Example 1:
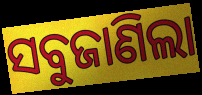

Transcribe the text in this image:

ସବୁଜାଣିଲା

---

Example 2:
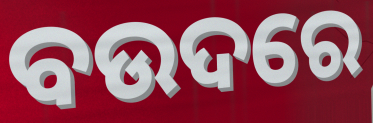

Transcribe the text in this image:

ବଉଦରେ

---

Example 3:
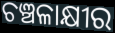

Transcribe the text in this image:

ଚଞ୍ଚଳାକ୍ଷୀର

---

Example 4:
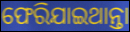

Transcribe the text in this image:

ଫେରିଯାଇଥାନ୍ତା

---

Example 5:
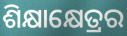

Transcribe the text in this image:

ଶିକ୍ଷାକ୍ଷେତ୍ରର